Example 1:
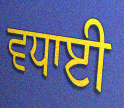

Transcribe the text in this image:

ਵਧਾਈ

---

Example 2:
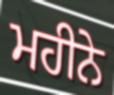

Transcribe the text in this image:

ਮਹੀਨੇ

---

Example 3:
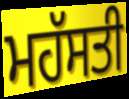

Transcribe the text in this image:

ਮਹੱਸਤੀ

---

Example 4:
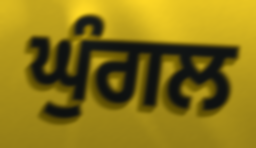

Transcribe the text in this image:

ਘੁੰਗਲ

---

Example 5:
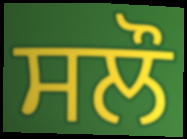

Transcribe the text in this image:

ਸਲੌ